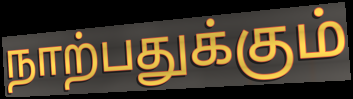
நாற்பதுக்கும்